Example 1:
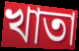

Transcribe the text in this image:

খাতা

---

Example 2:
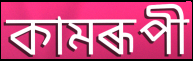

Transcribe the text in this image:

কামৰূপী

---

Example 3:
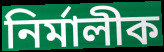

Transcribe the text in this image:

নিৰ্মালীক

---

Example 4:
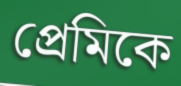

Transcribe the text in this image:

প্ৰেমিকে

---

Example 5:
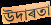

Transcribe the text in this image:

উদাৰতা